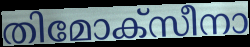
തിമോക്സീനാ